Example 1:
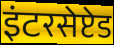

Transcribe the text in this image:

इंटरसेप्टेड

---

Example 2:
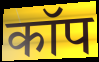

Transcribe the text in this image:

कॉप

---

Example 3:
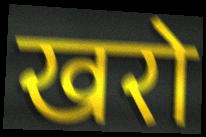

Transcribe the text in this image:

खरो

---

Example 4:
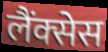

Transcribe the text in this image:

लैंक्‍सेस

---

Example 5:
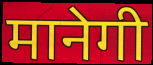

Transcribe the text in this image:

मानेगी